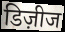
डिज़ीज